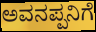
ಅವನಪ್ಪನಿಗೆ